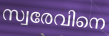
സ്വരേവിനെ